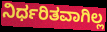
ನಿರ್ಧರಿತವಾಗಿಲ್ಲ